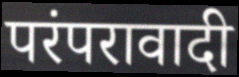
परंपरावादी